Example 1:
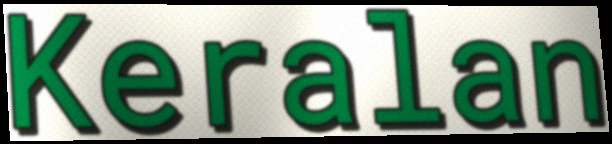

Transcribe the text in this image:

Keralan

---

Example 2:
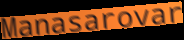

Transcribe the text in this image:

Manasarovar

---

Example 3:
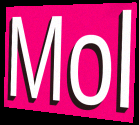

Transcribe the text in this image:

Mol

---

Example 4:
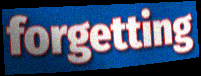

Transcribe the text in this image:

forgetting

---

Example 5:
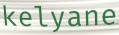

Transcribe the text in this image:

kelyane